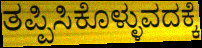
ತಪ್ಪಿಸಿಕೊಳ್ಳುವದಕ್ಕೆ